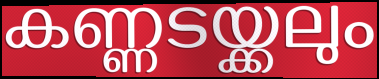
കണ്ണടയ്ക്കലും